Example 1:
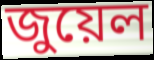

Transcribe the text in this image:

জুয়েল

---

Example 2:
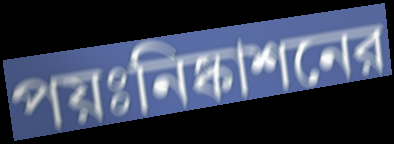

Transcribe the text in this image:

পয়ঃনিষ্কাশনের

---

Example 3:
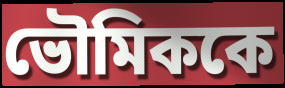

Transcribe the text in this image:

ভৌমিককে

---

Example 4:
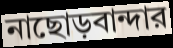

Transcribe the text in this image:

নাছোড়বান্দার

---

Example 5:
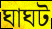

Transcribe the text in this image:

ঘাঘট